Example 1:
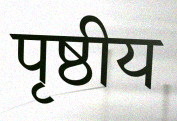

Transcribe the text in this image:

पृष्ठीय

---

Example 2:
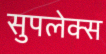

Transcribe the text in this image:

सुपलेक्स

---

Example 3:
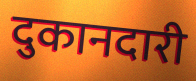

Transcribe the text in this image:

दुकानदारी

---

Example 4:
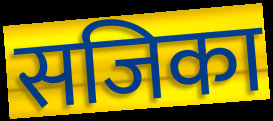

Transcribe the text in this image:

सजिका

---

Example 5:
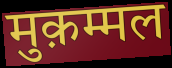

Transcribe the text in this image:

मुक़म्मल